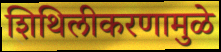
शिथिलीकरणामुळे